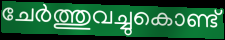
ചേർത്തുവച്ചുകൊണ്ട്